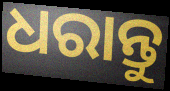
ଧରାନ୍ତୁ